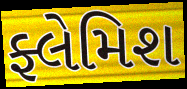
ફ્લેમિશ